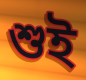
শুই